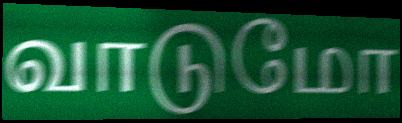
வாடுமோ